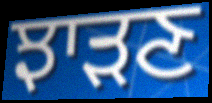
ਝਾੜਣ